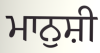
ਮਾਨੁਸ਼ੀ